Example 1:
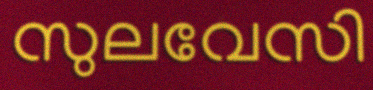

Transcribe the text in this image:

സുലവേസി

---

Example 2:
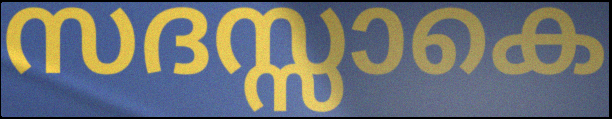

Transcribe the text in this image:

സദസ്സാകെ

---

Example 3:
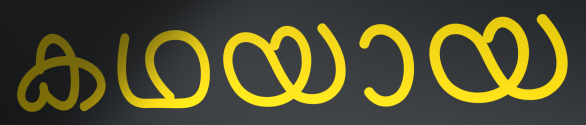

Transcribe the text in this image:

കഥയായ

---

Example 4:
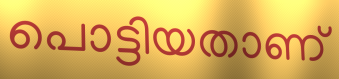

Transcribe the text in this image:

പൊട്ടിയതാണ്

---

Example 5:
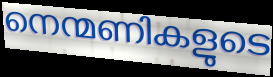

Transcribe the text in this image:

നെന്മണികളുടെ